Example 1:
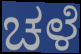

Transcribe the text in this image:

ಚಳೆ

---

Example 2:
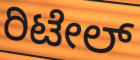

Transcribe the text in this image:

ರಿಟೇಲ್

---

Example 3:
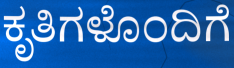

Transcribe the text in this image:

ಕೃತಿಗಳೊಂದಿಗೆ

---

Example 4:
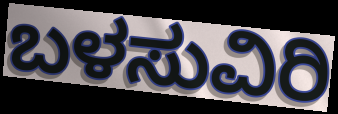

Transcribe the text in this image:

ಬಳಸುವಿರಿ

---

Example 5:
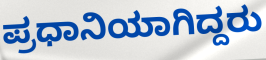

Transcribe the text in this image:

ಪ್ರಧಾನಿಯಾಗಿದ್ದರು